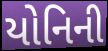
યોનિની